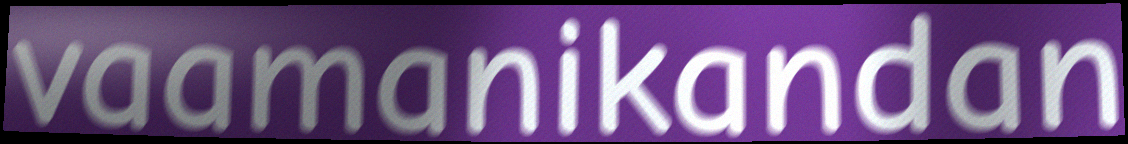
vaamanikandan